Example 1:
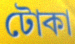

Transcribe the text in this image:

টোকা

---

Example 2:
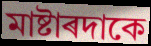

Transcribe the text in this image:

মাষ্টাৰদাকে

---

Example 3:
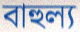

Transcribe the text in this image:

বাহুল্য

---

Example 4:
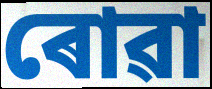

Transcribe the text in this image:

ৰোৱা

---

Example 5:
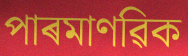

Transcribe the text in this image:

পাৰমাণৱিক